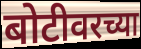
बोटीवरच्या